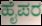
ಹೈಪರ